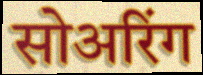
सोअरिंग